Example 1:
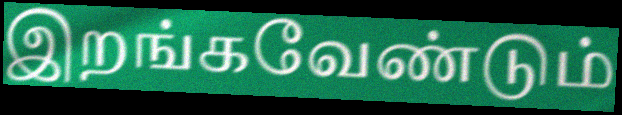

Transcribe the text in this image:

இறங்கவேண்டும்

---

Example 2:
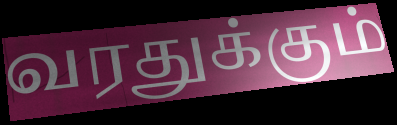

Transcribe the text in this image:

வரதுக்கும்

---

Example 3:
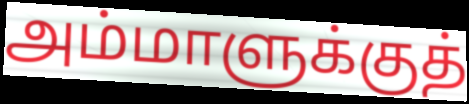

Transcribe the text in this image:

அம்மாளுக்குத்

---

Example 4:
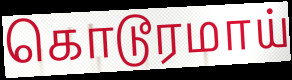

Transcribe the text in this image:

கொடூரமாய்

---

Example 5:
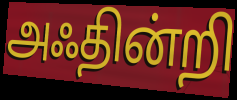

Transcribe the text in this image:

அஃதின்றி